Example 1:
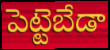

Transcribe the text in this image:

పెట్టెబేడా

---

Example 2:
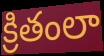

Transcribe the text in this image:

క్రితంలా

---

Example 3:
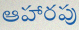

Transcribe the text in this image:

ఆహారపు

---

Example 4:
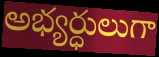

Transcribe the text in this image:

అభ్యర్ధులుగా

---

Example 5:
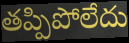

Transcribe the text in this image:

తప్పిపోలేదు